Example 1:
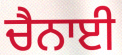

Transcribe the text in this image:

ਚੈਨਾਈ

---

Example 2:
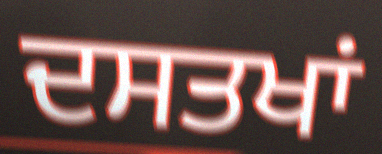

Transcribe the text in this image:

ਦਸਤਖਾਂ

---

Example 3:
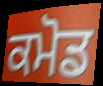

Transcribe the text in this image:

ਕਮੋਡ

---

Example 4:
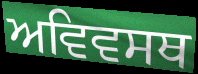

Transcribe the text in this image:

ਅਵਿਵਸਥ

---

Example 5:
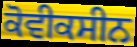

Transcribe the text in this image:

ਕੋਵੀਕਸੀਨ